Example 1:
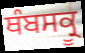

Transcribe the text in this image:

ਥੰਬਸਕ੍ਰੂ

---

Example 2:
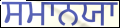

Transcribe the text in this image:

ਸਮਾਨਯਾ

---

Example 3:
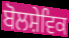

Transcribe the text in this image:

ਬੋਲਸ਼ੇਵਿਕ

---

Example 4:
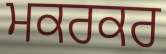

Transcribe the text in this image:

ਮਕਰਕਰ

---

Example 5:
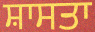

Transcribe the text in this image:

ਸ਼ਾਸਤਾ